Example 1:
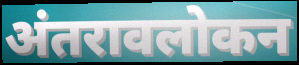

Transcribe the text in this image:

अंतरावलोकन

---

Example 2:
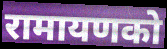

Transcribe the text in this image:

रामायणको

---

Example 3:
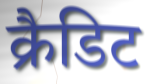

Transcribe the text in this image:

क्रैडिट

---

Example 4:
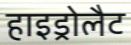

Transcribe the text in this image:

हाइड्रोलैट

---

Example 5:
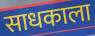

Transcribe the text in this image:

साधकाला